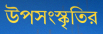
উপসংস্কৃতির